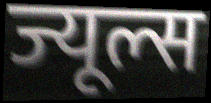
ज्यूल्स